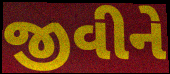
જીવીને